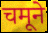
चमूने